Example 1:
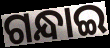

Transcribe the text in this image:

ଗନ୍ଧାଇ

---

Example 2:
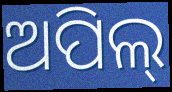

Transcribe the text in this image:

ଅପିଲ୍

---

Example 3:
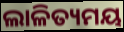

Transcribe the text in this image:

ଲାଳିତ୍ୟମୟ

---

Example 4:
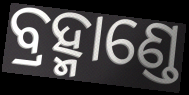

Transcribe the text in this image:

ବ୍ରହ୍ମାଣ୍ଡେ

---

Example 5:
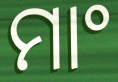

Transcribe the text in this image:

ମାଂ